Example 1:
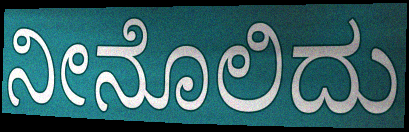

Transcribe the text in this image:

ನೀನೊಲಿದು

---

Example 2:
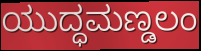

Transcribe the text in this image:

ಯುದ್ಧಮಣ್ಡಲಂ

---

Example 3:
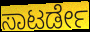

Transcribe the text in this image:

ಸಾಟರ್ಡೇ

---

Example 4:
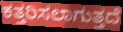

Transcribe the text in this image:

ಕತ್ತರಿಸಲಾಗುತ್ತದೆ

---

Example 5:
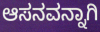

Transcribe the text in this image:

ಆಸನವನ್ನಾಗಿ